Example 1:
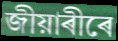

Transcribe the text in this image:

জীয়াৰীৰে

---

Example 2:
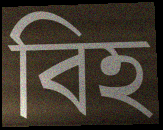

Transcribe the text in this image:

বিহ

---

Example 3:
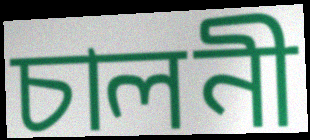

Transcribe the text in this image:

চালনী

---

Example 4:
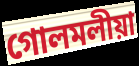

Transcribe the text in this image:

গোলমলীয়া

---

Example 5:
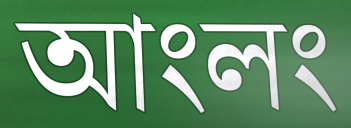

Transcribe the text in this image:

আংলং